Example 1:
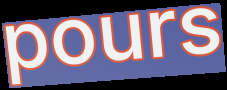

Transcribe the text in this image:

pours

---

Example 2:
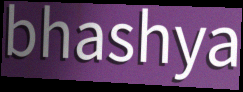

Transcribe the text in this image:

bhashya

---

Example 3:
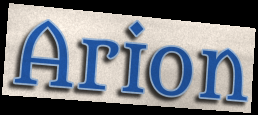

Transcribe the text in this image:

Arion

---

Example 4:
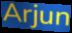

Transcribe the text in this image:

Arjun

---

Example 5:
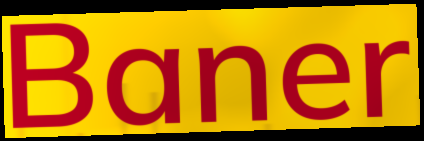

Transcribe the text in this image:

Baner